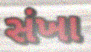
સંખા